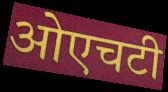
ओएचटी